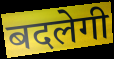
बदलेगी